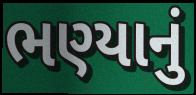
ભણ્યાનું